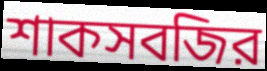
শাকসবজির